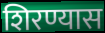
शिरण्यास